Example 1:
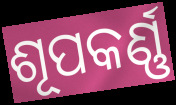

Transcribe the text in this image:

ଶୂପକର୍ଣ୍ଣ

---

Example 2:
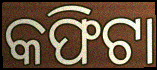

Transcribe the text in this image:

କଫିଟା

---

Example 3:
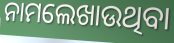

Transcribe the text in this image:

ନାମଲେଖାଉଥିବା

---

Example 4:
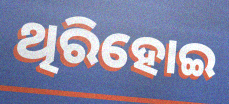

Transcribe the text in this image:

ଥିରିହୋଇ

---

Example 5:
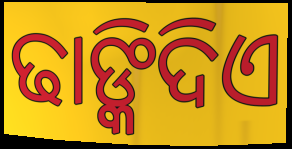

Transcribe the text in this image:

ଢାଙ୍କିଦିଏ